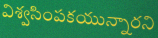
విశ్వసింపకయున్నారని